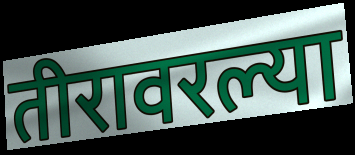
तीरावरल्या